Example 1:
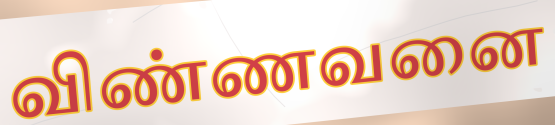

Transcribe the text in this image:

விண்ணவனை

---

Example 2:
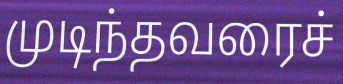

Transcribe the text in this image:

முடிந்தவரைச்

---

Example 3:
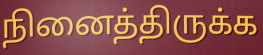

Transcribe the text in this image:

நினைத்திருக்க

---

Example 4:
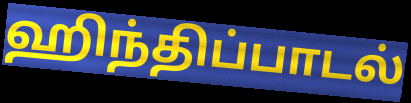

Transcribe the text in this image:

ஹிந்திப்பாடல்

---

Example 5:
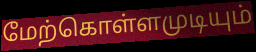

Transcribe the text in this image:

மேற்கொள்ளமுடியும்